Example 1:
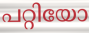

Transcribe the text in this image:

പറ്റിയോ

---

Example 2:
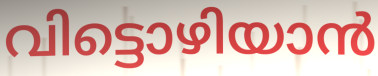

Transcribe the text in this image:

വിട്ടൊഴിയാൻ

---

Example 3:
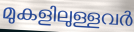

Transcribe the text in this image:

മുകളിലുള്ളവർ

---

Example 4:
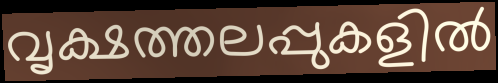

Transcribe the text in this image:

വൃക്ഷത്തലപ്പുകളിൽ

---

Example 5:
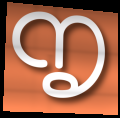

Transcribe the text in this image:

നൃ